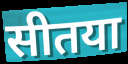
सीतया